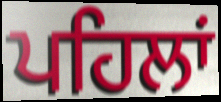
ਪਹਿਲਾਂ